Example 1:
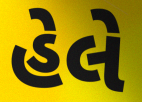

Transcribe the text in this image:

હેલે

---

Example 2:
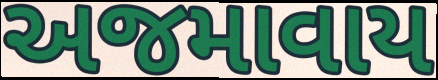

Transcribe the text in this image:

અજમાવાય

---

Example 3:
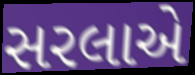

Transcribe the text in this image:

સરલાએ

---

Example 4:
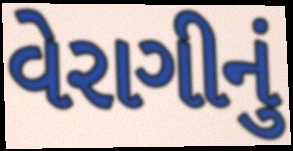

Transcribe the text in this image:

વેરાગીનું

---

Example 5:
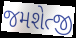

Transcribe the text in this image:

જમશેત્જી